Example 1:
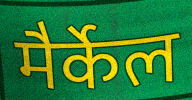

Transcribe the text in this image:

मैर्केल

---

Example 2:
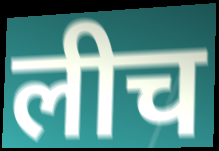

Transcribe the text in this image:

लीच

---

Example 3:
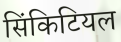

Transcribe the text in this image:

सिंकिटियल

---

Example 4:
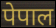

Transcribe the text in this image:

पेपाल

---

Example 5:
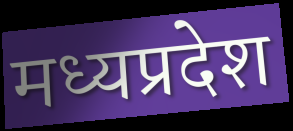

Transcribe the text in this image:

मध्यप्रदेश